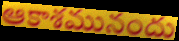
ఆకాశమునందు